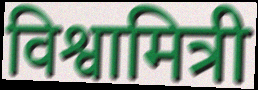
विश्वामित्री